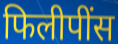
फिलीपींस